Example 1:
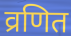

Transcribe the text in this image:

व्रणित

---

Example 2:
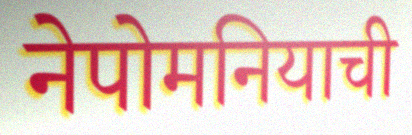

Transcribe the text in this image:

नेपोमनियाची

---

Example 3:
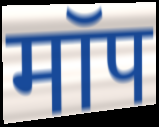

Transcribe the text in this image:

मॉप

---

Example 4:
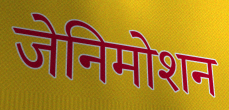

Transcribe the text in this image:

जेनिमोशन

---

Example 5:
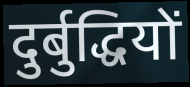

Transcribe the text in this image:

दुर्बुद्धियों